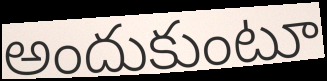
అందుకుంటూ